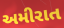
અમીરાત